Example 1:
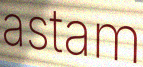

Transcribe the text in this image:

astam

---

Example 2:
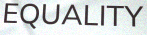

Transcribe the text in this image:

EQUALITY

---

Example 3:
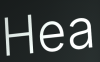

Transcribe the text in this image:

Hea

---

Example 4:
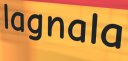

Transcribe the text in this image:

lagnala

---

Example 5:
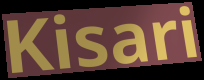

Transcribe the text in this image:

Kisari